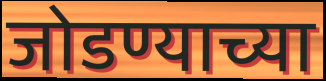
जोडण्याच्या